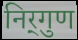
निर्गुण